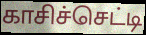
காசிச்செட்டி